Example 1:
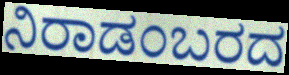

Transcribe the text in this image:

ನಿರಾಡಂಬರದ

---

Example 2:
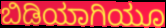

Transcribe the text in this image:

ಬಿಡಿಯಾಗಿಯೂ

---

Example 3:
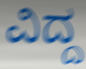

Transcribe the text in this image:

ವಿದ್ದ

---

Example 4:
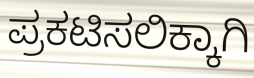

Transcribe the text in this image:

ಪ್ರಕಟಿಸಲಿಕ್ಕಾಗಿ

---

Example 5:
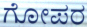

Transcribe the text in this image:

ಗೋಪರ